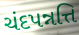
ચંદપન્નત્તિ